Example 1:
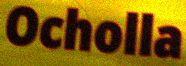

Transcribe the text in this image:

Ocholla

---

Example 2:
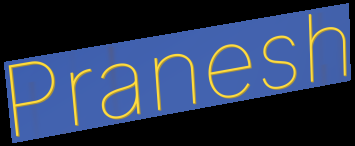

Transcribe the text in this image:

Pranesh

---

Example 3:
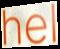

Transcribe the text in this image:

hel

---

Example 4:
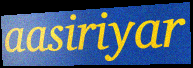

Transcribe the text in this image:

aasiriyar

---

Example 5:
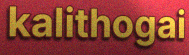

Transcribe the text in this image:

kalithogai